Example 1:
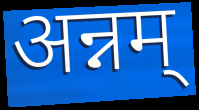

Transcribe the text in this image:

अन्नम्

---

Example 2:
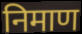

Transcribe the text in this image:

निमाण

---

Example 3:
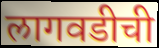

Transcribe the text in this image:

लागवडीची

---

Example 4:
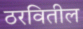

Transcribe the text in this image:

ठरवितील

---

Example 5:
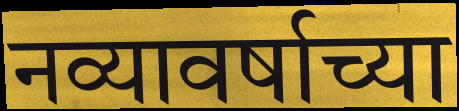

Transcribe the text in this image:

नव्यावर्षाच्या